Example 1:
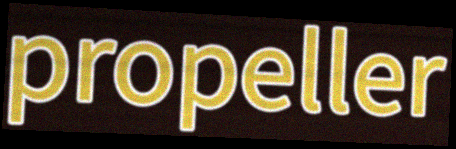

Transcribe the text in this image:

propeller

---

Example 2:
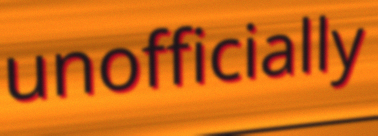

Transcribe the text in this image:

unofficially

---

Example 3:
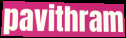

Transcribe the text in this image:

pavithram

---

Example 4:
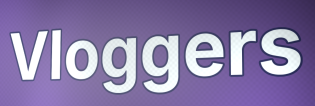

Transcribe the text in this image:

Vloggers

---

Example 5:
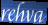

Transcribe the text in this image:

rehva